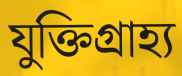
যুক্তিগ্রাহ্য